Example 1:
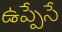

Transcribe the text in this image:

ఉప్పేసే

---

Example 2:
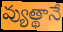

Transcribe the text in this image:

వ్యుత్థానే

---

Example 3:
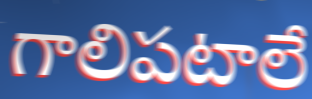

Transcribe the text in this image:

గాలిపటాలే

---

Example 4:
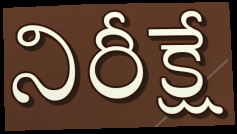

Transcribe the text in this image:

నిరీక్షే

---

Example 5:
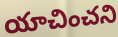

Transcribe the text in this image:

యాచించని